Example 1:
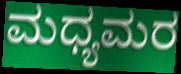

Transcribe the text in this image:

ಮಧ್ಯಮರ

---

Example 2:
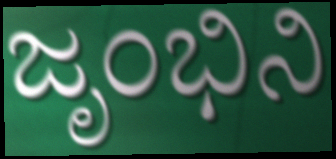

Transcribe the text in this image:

ಜೃಂಭಿನಿ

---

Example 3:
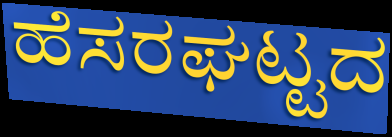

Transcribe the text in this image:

ಹೆಸರಘಟ್ಟದ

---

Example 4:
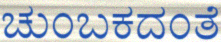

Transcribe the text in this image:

ಚುಂಬಕದಂತೆ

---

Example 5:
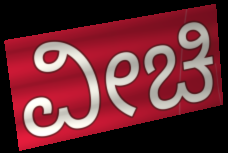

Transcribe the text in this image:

ವೀಚಿ